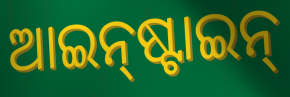
ଆଇନ୍‌ଷ୍ଟାଇନ୍